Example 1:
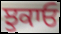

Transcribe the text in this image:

ਝੁਕਾਓ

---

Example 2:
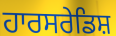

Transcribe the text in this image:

ਹਾਰਸਰੇਡਿਸ਼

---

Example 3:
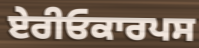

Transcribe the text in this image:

ਏਰੀਓਕਾਰਪਸ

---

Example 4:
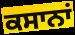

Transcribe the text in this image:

ਕਸਾਨਾਂ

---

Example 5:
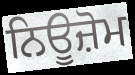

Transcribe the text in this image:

ਨਿਊਜ਼ੋਮ